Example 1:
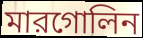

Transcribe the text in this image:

মারগোলিন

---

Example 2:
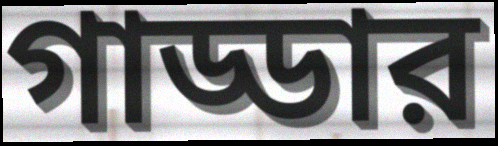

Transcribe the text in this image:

গাড্ডার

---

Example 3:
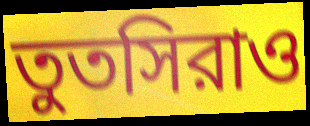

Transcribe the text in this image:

তুতসিরাও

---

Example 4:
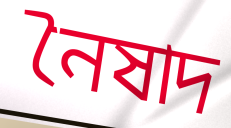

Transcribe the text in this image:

নৈষাদ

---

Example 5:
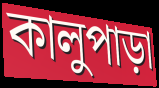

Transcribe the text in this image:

কালুপাড়া